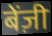
बेंज़ी